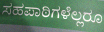
ಸಹಪಾಠಿಗಳೆಲ್ಲರೂ